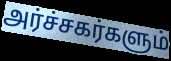
அர்ச்சகர்களும்